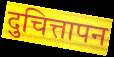
दुचित्तापन